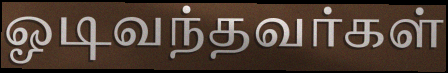
ஓடிவந்தவர்கள்